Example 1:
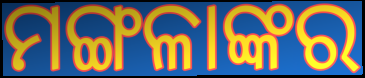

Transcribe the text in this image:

ମଙ୍ଗଳାଙ୍କର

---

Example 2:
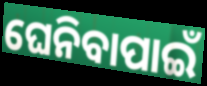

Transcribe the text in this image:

ଘେନିବାପାଇଁ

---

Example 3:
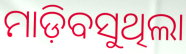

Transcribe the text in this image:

ମାଡ଼ିବସୁଥିଲା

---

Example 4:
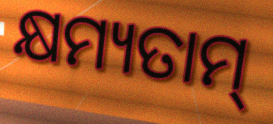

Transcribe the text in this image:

କ୍ଷମ୍ୟତାମ୍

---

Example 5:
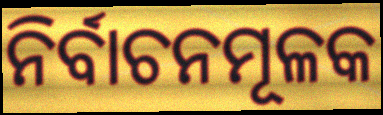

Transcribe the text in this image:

ନିର୍ବାଚନମୂଳକ